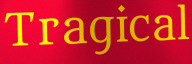
Tragical